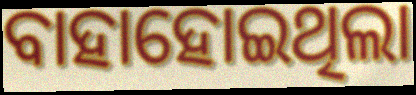
ବାହାହୋଇଥିଲା